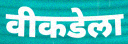
वीकडेला